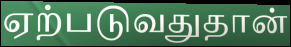
ஏற்படுவதுதான்